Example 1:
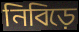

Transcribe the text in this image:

নিবিড়ে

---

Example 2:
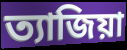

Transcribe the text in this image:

ত্যাজিয়া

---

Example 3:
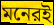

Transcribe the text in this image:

মনেরই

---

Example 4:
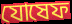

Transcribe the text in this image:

যোষেফ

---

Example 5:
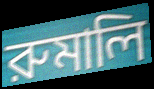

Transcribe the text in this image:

রুমালি